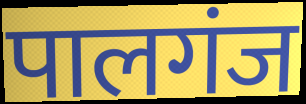
पालगंज